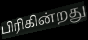
பிரிகின்றது